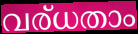
വര്ധതാം